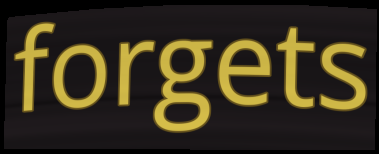
forgets